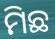
ମିଛ